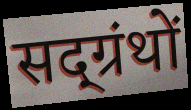
सद्ग्रंथों